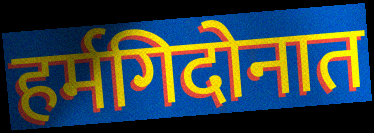
हर्मगिदोनात